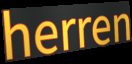
herren